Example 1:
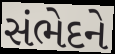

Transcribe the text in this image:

સંભેદને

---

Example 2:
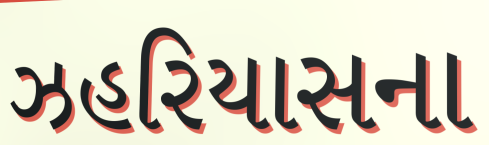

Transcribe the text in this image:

ઝહરિયાસના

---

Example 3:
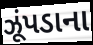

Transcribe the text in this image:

ઝૂંપડાના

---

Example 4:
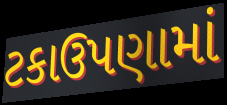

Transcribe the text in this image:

ટકાઉપણામાં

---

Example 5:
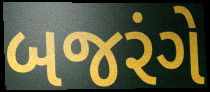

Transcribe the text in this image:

બજરંગે